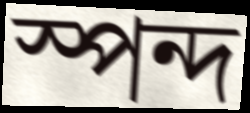
স্পন্দ